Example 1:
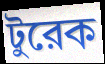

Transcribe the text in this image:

টুরেক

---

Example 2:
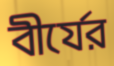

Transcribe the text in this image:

বীর্যের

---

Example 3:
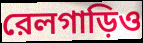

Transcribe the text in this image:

রেলগাড়িও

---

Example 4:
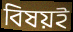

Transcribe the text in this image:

বিষয়ই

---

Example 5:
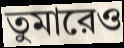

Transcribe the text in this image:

তুমারেও